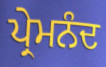
ਪ੍ਰੇਮਨੰਦ